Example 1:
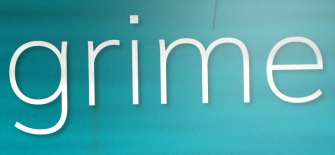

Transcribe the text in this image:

grime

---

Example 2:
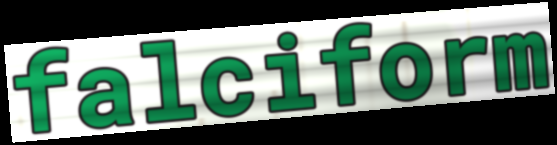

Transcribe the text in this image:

falciform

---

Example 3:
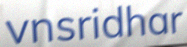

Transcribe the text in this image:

vnsridhar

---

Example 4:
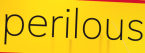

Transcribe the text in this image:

perilous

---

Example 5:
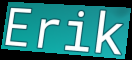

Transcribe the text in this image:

Erik